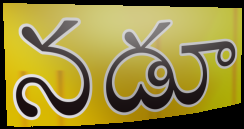
నడూ